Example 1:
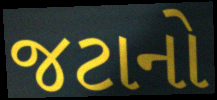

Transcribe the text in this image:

જટાનો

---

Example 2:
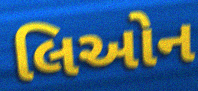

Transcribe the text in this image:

લિઓન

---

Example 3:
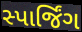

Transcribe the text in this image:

સ્પાર્જિંગ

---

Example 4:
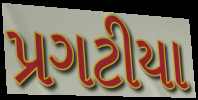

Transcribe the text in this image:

પ્રગટીયા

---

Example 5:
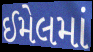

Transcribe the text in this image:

ઈમેલમાં